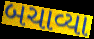
બચાવ્યા